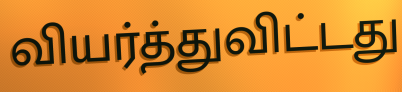
வியர்த்துவிட்டது